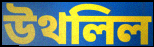
উথলিল